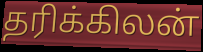
தரிக்கிலன்